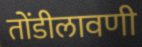
तोंडीलावणी